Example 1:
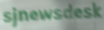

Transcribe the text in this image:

sjnewsdesk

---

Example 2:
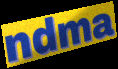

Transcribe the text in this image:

ndma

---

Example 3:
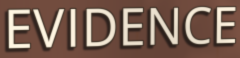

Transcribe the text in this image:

EVIDENCE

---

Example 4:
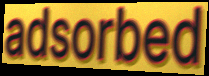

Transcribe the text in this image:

adsorbed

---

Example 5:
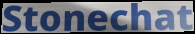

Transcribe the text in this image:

Stonechat